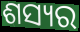
ଶସ୍ଯର